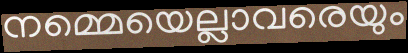
നമ്മെയെല്ലാവരെയും